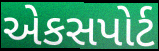
એકસપોર્ટ